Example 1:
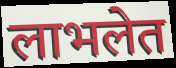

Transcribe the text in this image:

लाभलेत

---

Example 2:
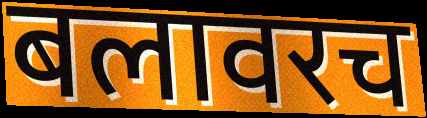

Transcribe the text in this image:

बलावरच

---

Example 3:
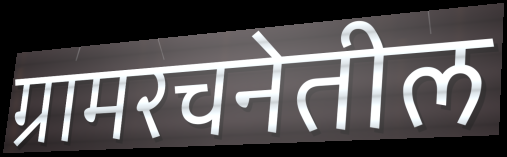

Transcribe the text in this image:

ग्रामरचनेतील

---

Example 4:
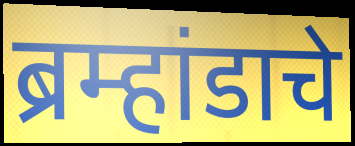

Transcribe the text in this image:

ब्रम्हांडाचे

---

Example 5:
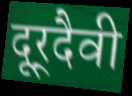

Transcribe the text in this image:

दूर्दैवी